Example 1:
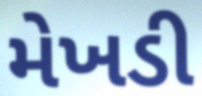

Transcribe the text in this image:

મેખડી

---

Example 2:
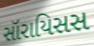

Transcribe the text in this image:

સૉરાયિસસ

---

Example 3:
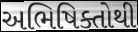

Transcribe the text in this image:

અભિષિક્તોથી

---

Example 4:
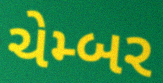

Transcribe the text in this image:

ચેમ્બર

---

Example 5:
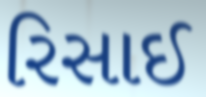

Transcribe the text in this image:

રિસાઈ